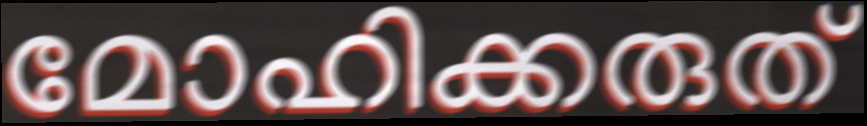
മോഹിക്കരുത്